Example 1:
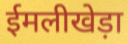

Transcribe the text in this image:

ईमलीखेड़ा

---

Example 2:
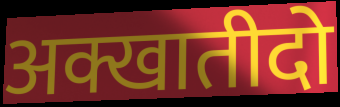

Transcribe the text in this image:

अक्खातीदो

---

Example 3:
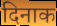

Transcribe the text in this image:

दिनाक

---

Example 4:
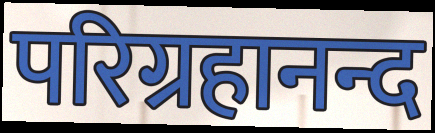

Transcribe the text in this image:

परिग्रहानन्द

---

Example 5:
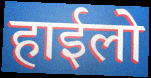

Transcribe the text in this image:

हाईलो